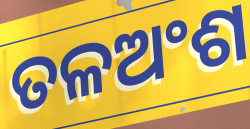
ତଳଅଂଶ